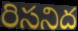
రిసనిద